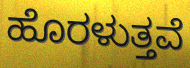
ಹೊರಳುತ್ತವೆ